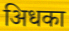
अिधका